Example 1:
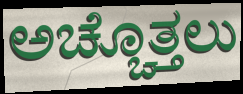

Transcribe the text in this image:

ಅಚ್ಚೊತ್ತಲು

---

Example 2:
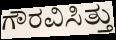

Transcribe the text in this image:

ಗೌರವಿಸಿತ್ತು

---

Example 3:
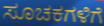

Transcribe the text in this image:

ಸೂಚಕಗಳಿಗೆ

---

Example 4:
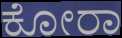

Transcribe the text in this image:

ಕೋರಾ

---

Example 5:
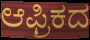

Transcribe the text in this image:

ಆಫ್ರಿಕದ